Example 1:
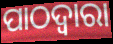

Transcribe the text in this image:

ପାଠଦ୍ଵାରା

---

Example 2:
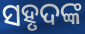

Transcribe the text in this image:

ସହୃଦଙ୍କ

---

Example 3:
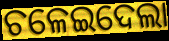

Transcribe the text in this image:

ଚଳେଇଦେଲା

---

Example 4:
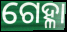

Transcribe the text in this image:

ଗେହ୍ଳା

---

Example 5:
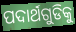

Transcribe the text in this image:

ପଦାର୍ଥଗୁଡିକୁ